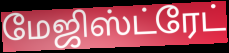
மேஜிஸ்ட்ரேட்